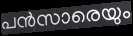
പൻസാരെയും